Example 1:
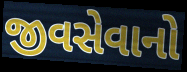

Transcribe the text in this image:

જીવસેવાનો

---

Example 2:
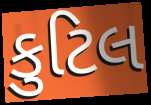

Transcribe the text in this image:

કુટિલ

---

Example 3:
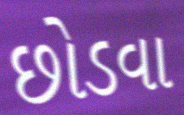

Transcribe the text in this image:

છોડવા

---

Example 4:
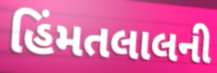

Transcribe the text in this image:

હિંમતલાલની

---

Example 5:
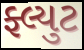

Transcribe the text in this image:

ફ્લ્યુટ